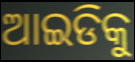
ଆଇଡିକୁ